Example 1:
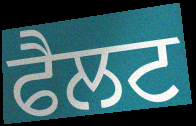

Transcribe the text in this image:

ਫੈਲਟ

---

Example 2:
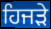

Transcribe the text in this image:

ਹਿਜੜੇ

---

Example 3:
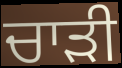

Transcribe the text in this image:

ਚਾਡ਼ੀ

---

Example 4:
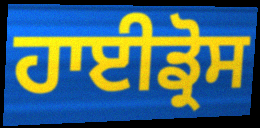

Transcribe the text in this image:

ਹਾਈਡ੍ਰੋਸ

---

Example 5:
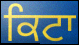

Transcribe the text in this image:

ਕਿਟਾ